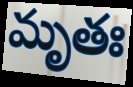
మృతః